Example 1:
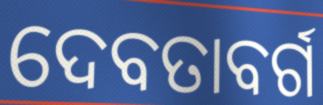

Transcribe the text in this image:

ଦେବତାବର୍ଗ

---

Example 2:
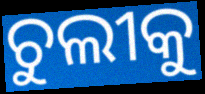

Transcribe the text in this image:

ଚୁଲୀକୁ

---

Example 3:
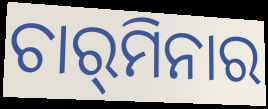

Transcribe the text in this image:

ଚାର୍‌ମିନାର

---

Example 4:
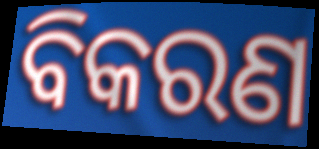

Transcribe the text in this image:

ବିକରଣ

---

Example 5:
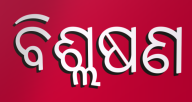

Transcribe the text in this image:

ବିଶ୍ଲଷଣ